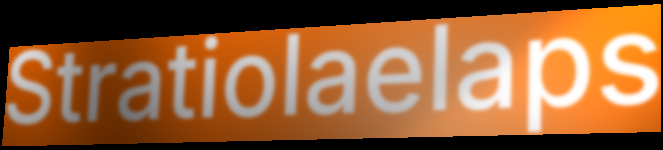
Stratiolaelaps